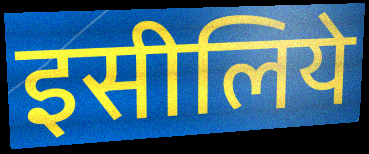
इसीलिये